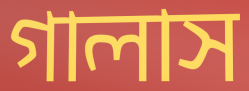
গালাস